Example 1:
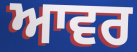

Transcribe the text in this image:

ਆਵਰ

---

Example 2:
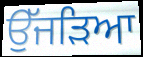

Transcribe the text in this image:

ਉੱਜੜਿਆ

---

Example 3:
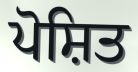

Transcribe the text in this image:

ਪੋਸ਼ਿਤ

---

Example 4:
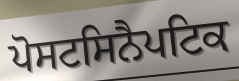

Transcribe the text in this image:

ਪੋਸਟਸਿਨੈਪਟਿਕ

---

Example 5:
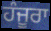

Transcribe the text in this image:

ਹੰਜੂਰਾ